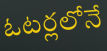
ఓటర్లలోనే